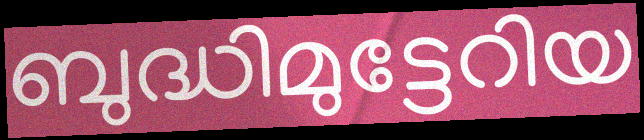
ബുദ്ധിമുട്ടേറിയ